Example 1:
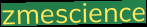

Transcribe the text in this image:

zmescience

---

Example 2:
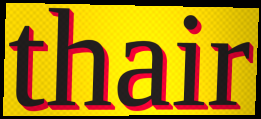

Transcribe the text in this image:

thair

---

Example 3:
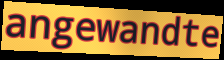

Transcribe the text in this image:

angewandte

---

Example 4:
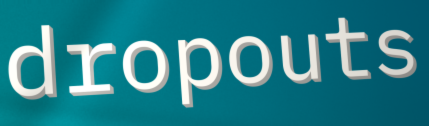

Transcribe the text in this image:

dropouts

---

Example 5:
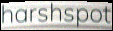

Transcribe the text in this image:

harshspot